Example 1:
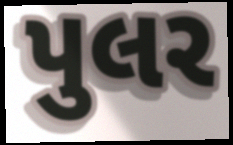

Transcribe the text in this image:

પુલર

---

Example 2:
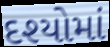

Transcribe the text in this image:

દશ્યોમાં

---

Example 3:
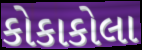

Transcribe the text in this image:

કોકાકોલા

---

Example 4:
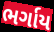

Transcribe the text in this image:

ભર્ગાય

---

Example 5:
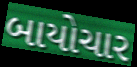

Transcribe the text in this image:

બાયોચાર